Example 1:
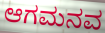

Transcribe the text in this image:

ಆಗಮನವ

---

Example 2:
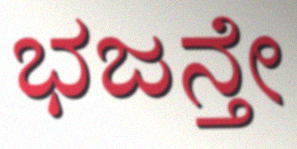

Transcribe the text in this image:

ಭಜನ್ತೇ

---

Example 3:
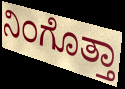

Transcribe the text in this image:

ನಿಂಗೊತ್ತಾ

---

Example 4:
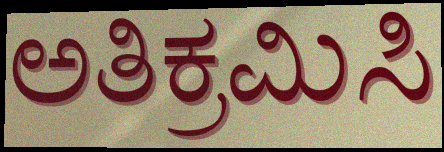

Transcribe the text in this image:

ಅತಿಕ್ರಮಿಸಿ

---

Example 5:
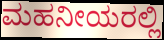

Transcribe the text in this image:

ಮಹನೀಯರಲ್ಲಿ